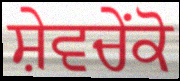
ਸ਼ੇਵਚੇਂਕੋ